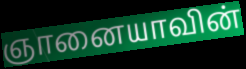
ஞானையாவின்